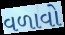
વળાવો